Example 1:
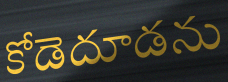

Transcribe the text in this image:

కోడెదూడను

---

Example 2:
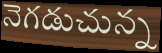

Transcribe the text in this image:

నెగడుచున్న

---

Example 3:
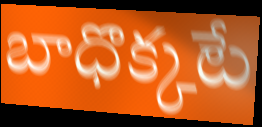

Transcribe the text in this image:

బాధొక్కటే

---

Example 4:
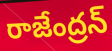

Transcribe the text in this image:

రాజేంద్రన్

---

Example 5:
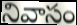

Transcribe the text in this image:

నివాసం